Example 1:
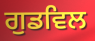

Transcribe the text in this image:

ਗੁਡਵਿਲ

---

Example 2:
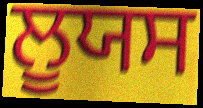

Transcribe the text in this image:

ਲੂਯਸ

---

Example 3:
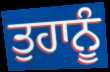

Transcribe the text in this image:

ਤੁਹਾਨੂੰ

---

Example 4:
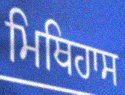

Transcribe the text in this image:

ਮਿਥਿਹਾਸ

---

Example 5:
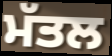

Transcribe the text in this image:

ਮੱਤਲ